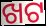
ଖଟ